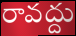
రావద్దు